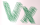
Vx